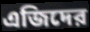
এজিদের